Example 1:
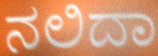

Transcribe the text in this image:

ನಲಿದಾ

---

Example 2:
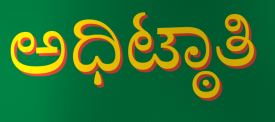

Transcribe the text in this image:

ಅಧಿಟ್ಠಾತಿ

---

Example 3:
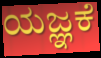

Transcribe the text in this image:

ಯಜ್ಞಕೆ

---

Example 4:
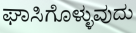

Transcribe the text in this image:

ಘಾಸಿಗೊಳ್ಳುವುದು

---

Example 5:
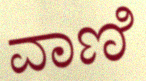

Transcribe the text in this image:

ವಾಣಿ